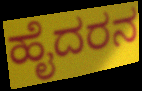
ಹೈದರನ